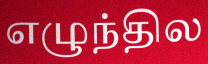
எழுந்தில